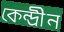
কেন্দ্রীন